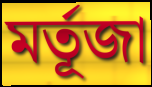
মর্তূজা